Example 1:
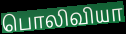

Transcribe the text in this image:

பொலிவியா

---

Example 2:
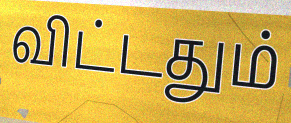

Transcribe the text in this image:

விட்டதும்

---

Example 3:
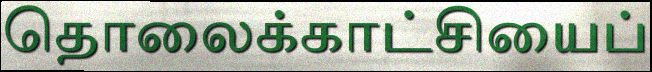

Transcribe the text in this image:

தொலைக்காட்சியைப்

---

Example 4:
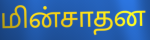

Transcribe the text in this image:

மின்சாதன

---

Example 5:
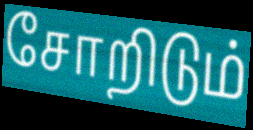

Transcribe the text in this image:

சோறிடும்